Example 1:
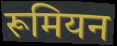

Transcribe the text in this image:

रूमियन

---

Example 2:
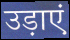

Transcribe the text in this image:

उड़ाएं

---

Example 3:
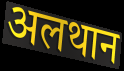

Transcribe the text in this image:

अलथान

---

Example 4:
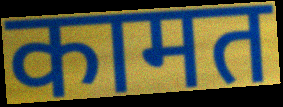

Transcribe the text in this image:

कामत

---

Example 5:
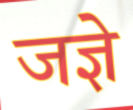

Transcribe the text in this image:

जज्ञे